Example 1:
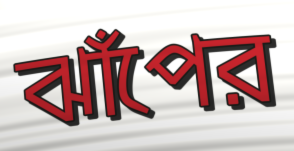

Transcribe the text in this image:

ঝাঁপের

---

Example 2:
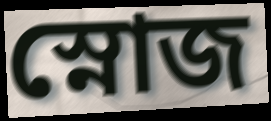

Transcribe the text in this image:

স্নোজ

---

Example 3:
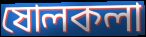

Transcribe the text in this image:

ষোলকলা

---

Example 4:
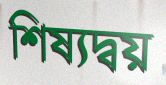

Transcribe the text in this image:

শিষ্যদ্বয়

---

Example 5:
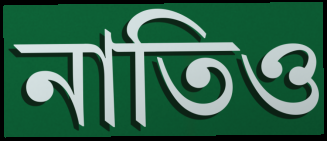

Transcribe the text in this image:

নাতিও